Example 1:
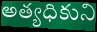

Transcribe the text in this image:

అత్యధికుని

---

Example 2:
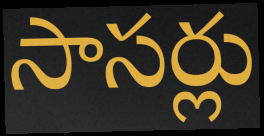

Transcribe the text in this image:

సాసర్లు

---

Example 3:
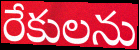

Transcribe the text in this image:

రేకులను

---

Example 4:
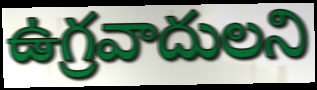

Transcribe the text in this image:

ఉగ్రవాదులని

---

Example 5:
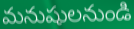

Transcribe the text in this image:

మనుషులనుండి